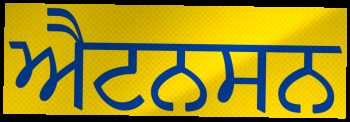
ਐਟਨਸਨ